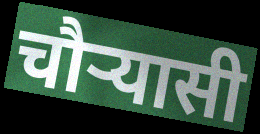
चौर्‍यासी